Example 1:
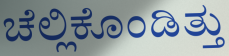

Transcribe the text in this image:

ಚೆಲ್ಲಿಕೊಂಡಿತ್ತು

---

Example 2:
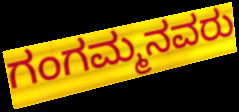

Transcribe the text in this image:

ಗಂಗಮ್ಮನವರು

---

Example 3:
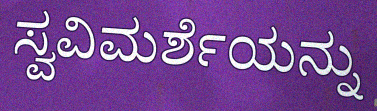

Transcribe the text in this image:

ಸ್ವವಿಮರ್ಶೆಯನ್ನು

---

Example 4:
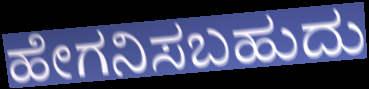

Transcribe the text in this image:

ಹೇಗನಿಸಬಹುದು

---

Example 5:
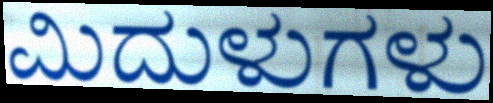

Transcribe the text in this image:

ಮಿದುಳುಗಳು